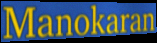
Manokaran